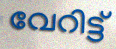
വേറിട്ട്